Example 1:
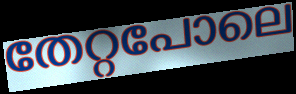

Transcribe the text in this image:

തേറ്റപോലെ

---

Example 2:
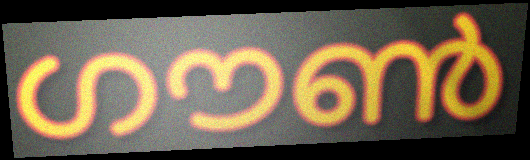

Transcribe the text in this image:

ഗൗൺ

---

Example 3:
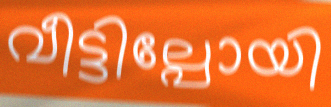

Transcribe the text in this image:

വീട്ടില്പോയി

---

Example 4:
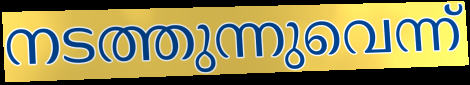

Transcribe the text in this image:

നടത്തുന്നുവെന്ന്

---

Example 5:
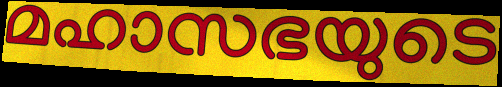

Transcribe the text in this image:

മഹാസഭയുടെ